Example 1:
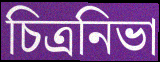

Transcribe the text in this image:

চিত্রনিভা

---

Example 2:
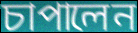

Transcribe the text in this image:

চাপালেন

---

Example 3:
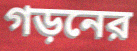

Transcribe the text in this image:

গড়নের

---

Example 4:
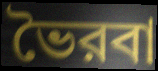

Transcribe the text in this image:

ভৈরবা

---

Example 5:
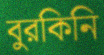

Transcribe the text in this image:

বুরকিনি